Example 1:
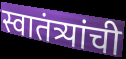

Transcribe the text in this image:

स्वातंत्र्यांची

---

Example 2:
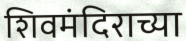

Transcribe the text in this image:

शिवमंदिराच्या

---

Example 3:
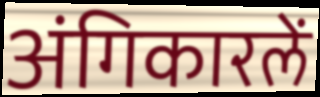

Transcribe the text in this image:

अंगिकारलें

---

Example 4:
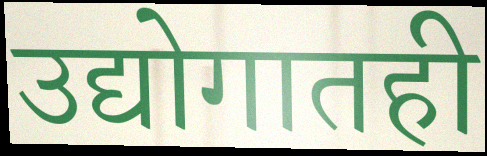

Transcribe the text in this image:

उद्योगातही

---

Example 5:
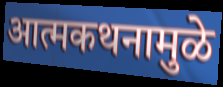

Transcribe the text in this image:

आत्मकथनामुळे